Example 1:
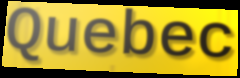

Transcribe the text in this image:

Quebec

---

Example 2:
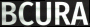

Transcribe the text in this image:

BCURA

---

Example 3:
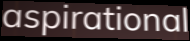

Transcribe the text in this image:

aspirational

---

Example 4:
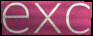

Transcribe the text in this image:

exc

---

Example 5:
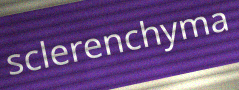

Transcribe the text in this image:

sclerenchyma